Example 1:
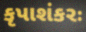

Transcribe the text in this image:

કૃપાશંકરઃ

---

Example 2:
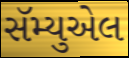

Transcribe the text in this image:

સૅમ્યુએલ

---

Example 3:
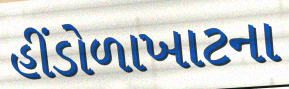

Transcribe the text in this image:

હીંડોળાખાટના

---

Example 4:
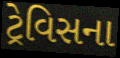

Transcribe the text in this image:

ટ્રેવિસના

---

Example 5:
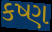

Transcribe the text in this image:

કષ્ણ